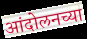
आंदोलनच्या